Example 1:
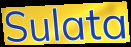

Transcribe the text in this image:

Sulata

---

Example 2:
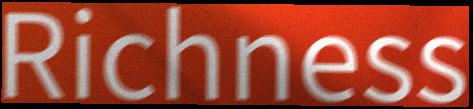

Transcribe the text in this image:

Richness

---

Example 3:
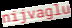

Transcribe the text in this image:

nijvaglu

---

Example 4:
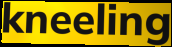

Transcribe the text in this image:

kneeling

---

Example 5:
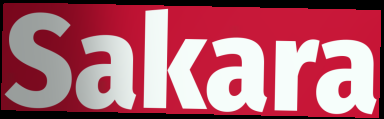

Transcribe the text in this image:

Sakara